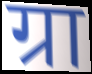
ग्रा